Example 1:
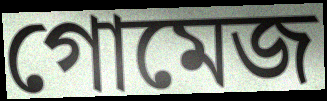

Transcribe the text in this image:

গোমেজ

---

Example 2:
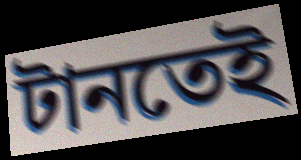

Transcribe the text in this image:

টানতেই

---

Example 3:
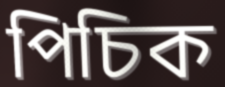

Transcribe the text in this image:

পিচিক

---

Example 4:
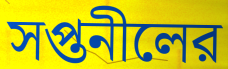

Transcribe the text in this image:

সপ্তনীলের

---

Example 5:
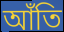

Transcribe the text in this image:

আঁতি